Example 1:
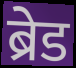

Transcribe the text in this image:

ब्रेड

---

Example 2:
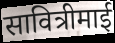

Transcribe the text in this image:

सावित्रीमाई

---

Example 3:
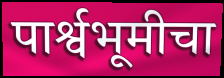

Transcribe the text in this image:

पार्श्वभूमीचा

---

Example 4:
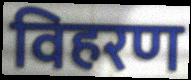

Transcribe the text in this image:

विहरण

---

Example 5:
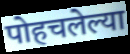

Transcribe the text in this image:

पोहचलेल्या